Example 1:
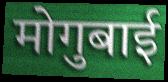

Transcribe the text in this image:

मोगुबाई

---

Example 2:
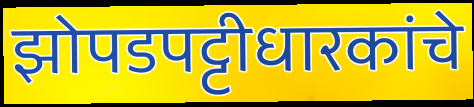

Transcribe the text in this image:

झोपडपट्टीधारकांचे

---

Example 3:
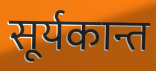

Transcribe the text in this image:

सूर्यकान्त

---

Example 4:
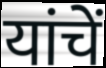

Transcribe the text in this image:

यांचें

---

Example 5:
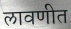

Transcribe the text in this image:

लावणीत